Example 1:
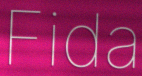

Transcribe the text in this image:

Fida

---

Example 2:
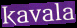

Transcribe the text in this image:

kavala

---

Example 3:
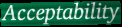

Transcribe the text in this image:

Acceptability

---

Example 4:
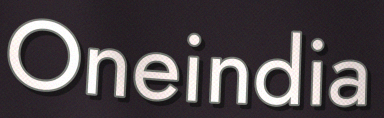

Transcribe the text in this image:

Oneindia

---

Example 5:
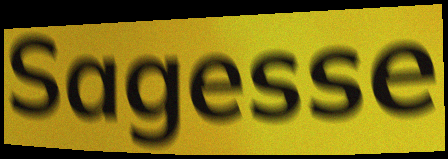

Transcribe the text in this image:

Sagesse